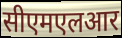
सीएमएलआर